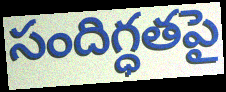
సందిగ్ధతపై